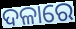
ଦଳାରେ